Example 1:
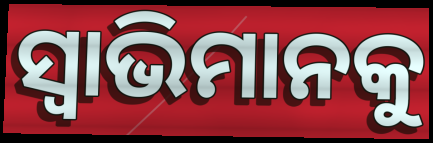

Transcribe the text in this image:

ସ୍ୱାଭିମାନକୁ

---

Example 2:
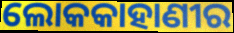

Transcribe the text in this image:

ଲୋକକାହାଣୀର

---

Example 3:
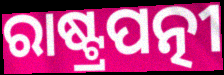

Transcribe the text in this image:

ରାଷ୍ଟ୍ରପତ୍ନୀ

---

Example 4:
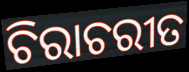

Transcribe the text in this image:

ଚିରାଚରୀତ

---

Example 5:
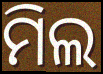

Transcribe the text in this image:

ମିଲ